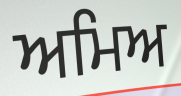
ਅਮਿਅ